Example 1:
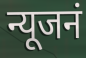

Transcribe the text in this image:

न्यूजनं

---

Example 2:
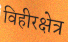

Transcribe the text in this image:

विहीरक्षेत्र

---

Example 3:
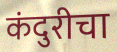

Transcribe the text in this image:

कंदुरीचा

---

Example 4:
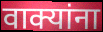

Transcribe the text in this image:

वाक्यांना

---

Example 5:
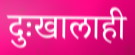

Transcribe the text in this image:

दुःखालाही